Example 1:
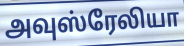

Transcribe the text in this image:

அவுஸ்ரேலியா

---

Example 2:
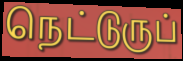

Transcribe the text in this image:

நெட்டுருப்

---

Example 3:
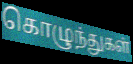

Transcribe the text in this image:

கொழுந்துகள்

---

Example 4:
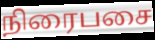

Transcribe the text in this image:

நிரைபசை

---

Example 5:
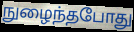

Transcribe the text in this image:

நுழைந்தபோது